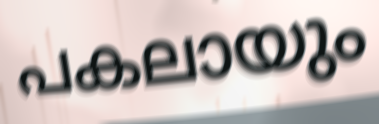
പകലായും